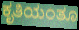
ಕೃತಿಯಂತೂ